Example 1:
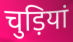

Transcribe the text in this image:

चुड़ियां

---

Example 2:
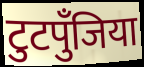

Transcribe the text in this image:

टुटपुँजिया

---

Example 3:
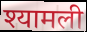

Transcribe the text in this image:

श्यामली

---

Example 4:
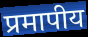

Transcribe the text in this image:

प्रमापीय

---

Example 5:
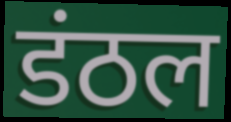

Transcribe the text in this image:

डंठल